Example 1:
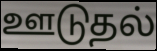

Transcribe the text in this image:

ஊடுதல்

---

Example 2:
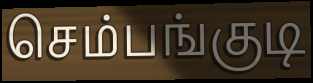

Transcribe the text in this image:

செம்பங்குடி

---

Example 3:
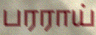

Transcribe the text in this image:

பரராய்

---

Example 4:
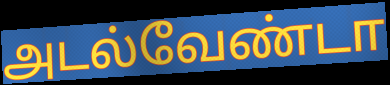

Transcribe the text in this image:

அடல்வேண்டா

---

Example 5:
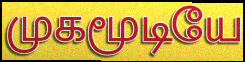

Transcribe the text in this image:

முகமூடியே